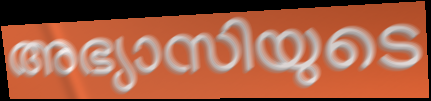
അഭ്യാസിയുടെ